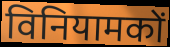
विनियामकों